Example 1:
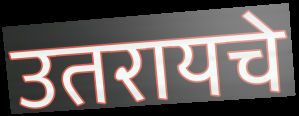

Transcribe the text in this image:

उतरायचे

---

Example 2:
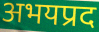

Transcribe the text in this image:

अभयप्रद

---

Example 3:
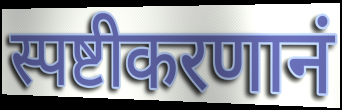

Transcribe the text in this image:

स्पष्टीकरणानं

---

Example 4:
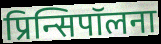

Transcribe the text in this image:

प्रिन्सिपॉलना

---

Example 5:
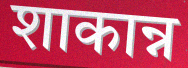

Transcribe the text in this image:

शाकान्न